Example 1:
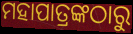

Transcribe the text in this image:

ମହାପାତ୍ରଙ୍କଠାରୁ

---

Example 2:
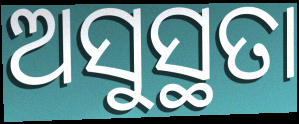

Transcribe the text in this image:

ଅସୁସ୍ଥତା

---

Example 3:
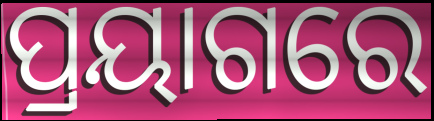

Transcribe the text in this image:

ପ୍ରୟାଗରେ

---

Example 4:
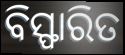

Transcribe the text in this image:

ବିସ୍ଫାରିତ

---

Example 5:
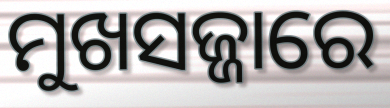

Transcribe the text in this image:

ମୁଖସଜ୍ଜାରେ